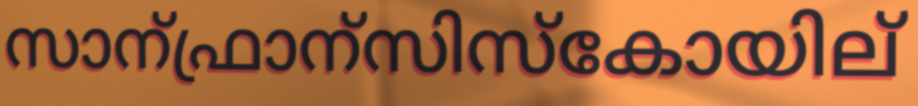
സാന്ഫ്രാന്സിസ്കോയില്